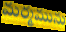
మర్మమును